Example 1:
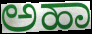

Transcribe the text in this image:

ಅಹಾ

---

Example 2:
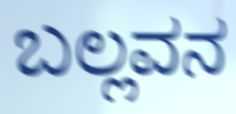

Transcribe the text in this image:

ಬಲ್ಲವನ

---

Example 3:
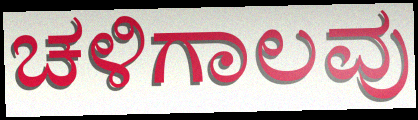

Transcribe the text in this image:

ಚಳಿಗಾಲವು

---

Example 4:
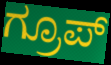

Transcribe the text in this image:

ಗ್ರೂಪ್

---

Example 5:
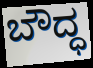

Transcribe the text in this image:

ಬೌದ್ಧ